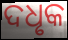
ଦଧୃକ